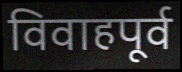
विवाहपूर्व